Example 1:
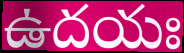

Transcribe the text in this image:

ఉదయః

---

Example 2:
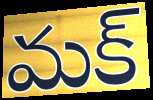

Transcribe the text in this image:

మక్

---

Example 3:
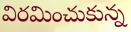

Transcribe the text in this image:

విరమించుకున్న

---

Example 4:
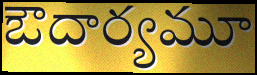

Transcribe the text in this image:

ఔదార్యమూ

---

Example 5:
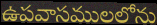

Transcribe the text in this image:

ఉపవాసములలోను